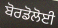
ਬੋਰਡੋਲੋਈ